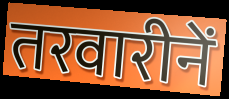
तरवारीनें